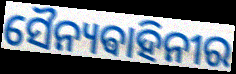
ସୈନ୍ୟଵାହିନୀର